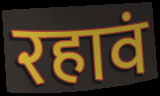
रहावं